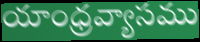
యాంధ్రవ్యాసము